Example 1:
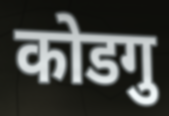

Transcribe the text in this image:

कोडगु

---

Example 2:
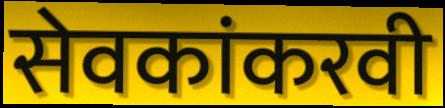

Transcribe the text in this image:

सेवकांकरवी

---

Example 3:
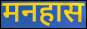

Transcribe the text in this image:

मनहास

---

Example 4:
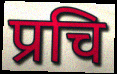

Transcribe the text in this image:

प्रचि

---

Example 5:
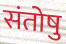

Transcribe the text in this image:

संतोषु